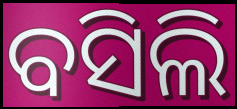
ବସିଲି